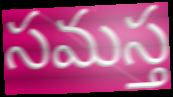
సమస్త